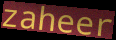
zaheer